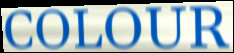
COLOUR